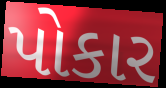
પોકાર